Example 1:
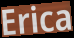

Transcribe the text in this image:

Erica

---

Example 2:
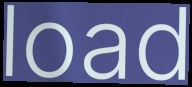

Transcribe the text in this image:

load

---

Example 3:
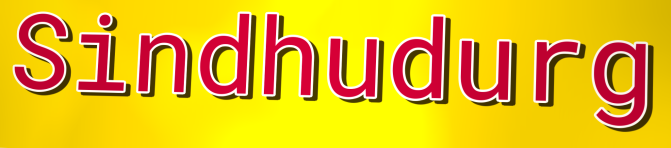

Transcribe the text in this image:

Sindhudurg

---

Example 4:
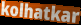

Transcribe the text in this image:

kolhatkar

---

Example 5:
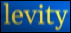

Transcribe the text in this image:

levity